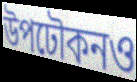
উপঢৌকনও